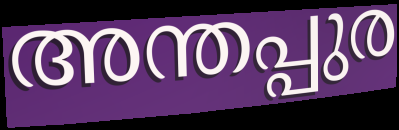
അന്തപ്പുര